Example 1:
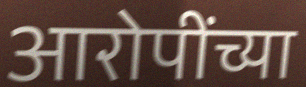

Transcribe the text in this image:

आरोपींच्या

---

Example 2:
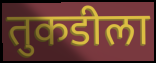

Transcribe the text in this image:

तुकडीला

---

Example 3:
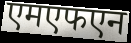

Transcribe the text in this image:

एमएफएन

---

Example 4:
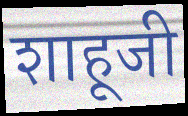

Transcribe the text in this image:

शाहूजी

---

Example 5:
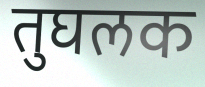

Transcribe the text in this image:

तुघलक